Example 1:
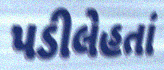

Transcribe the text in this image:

પડીલેહતાં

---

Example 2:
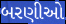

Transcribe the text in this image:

બરણીઓ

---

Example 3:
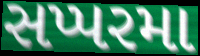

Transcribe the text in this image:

સપ્પરમા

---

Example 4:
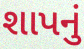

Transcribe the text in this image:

શાપનું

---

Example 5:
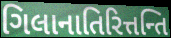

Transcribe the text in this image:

ગિલાનાતિરિત્તન્તિ